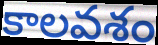
కాలవశం